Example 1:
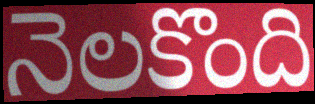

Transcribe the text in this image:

నెలకొంది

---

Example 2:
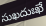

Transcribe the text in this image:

సుఖదుఃఖే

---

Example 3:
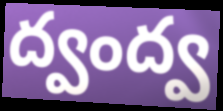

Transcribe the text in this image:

ద్వంద్వ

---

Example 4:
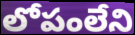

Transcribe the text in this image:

లోపంలేని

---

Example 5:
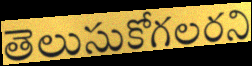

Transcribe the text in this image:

తెలుసుకోగలరని